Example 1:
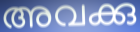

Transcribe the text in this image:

അവക്കു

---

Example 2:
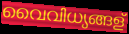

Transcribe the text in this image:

വൈവിധ്യങ്ങള്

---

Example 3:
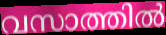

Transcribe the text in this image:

വസാത്തിൽ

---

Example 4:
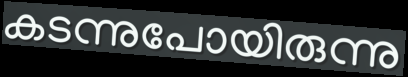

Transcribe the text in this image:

കടന്നുപോയിരുന്നു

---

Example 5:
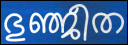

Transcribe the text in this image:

ഭുഞ്ജീത